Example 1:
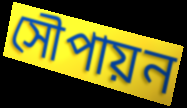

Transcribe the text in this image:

সৌপায়ন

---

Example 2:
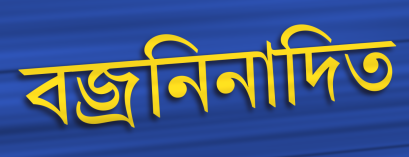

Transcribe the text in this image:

বজ্রনিনাদিত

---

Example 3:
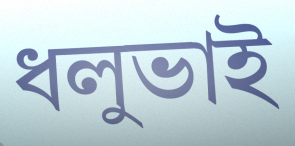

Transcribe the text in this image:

ধলুভাই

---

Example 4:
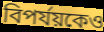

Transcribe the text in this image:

বিপর্যয়কেও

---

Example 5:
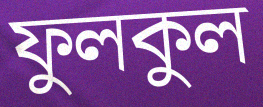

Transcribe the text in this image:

ফুলকুল